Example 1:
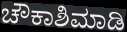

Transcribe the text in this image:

ಚೌಕಾಶಿಮಾಡಿ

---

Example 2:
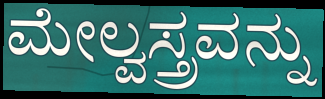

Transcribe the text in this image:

ಮೇಲ್ವಸ್ತ್ರವನ್ನು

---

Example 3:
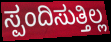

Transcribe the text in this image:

ಸ್ಪಂದಿಸುತ್ತಿಲ್ಲ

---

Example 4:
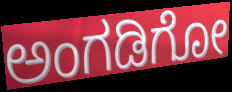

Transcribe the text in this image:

ಅಂಗಡಿಗೋ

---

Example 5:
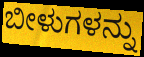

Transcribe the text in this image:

ಬೀಳುಗಳನ್ನು